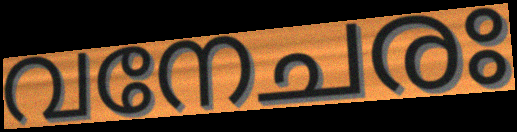
വനേചരഃ